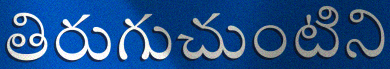
తిరుగుచుంటిని